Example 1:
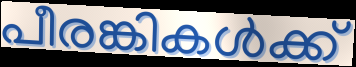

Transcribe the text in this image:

പീരങ്കികൾക്ക്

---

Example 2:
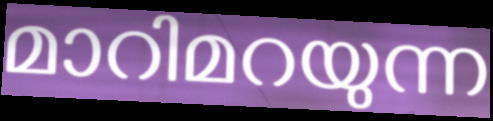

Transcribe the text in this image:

മാറിമറയുന്ന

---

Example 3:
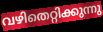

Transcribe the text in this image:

വഴിതെറ്റിക്കുന്നു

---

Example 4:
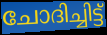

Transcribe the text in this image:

ചോദിച്ചിട്ട്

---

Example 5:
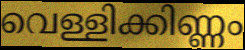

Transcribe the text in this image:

വെള്ളിക്കിണ്ണം